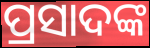
ପ୍ରସାଦଙ୍କ